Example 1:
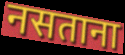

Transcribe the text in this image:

नसताना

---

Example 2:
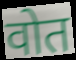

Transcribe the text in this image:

वोत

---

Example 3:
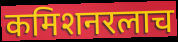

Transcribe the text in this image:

कमिशनरलाच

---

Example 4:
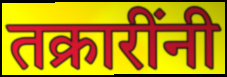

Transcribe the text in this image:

तक्रारींनी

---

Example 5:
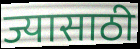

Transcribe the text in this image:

ज्यासाठी